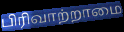
பிரிவாற்றாமை